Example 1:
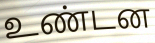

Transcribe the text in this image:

உண்டன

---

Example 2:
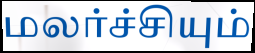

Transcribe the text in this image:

மலர்ச்சியும்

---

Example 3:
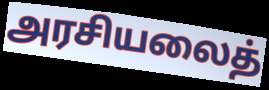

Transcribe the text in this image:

அரசியலைத்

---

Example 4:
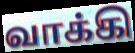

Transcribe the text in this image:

வாக்கி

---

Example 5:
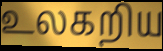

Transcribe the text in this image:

உலகறிய